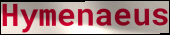
Hymenaeus